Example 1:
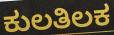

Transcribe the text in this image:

ಕುಲತಿಲಕ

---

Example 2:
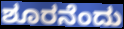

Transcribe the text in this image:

ಶೂರನೆಂದು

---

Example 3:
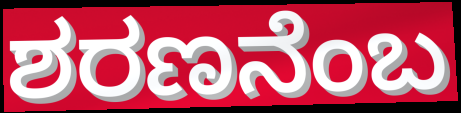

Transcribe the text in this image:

ಶರಣನೆಂಬ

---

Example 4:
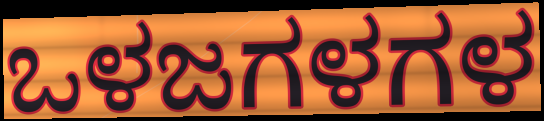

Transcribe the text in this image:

ಒಳಜಗಳಗಳ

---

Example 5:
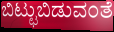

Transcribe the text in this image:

ಬಿಟ್ಟುಬಿಡುವಂತೆ